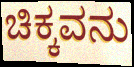
ಚಿಕ್ಕವನು